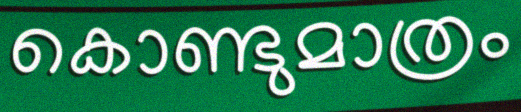
കൊണ്ടുമാത്രം